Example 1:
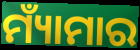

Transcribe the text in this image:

ମ୍ୟାଁମାର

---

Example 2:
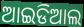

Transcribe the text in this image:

ଆଇଡିଆଲ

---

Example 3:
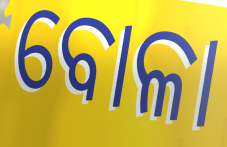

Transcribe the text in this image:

ବୋଳା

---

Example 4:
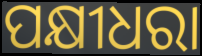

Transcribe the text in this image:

ପକ୍ଷୀଧରା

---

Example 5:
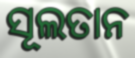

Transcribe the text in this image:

ସୂଲତାନ